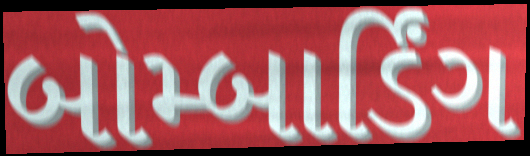
બોમ્બાર્ડિંગ